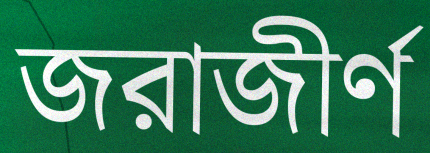
জরাজীর্ণ